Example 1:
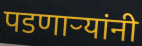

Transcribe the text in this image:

पडणाऱ्यांनी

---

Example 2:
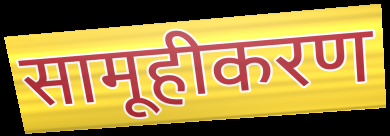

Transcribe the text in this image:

सामूहीकरण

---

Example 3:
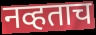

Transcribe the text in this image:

नव्हताच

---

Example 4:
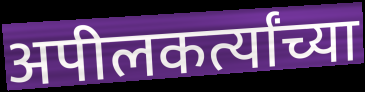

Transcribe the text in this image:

अपीलकर्त्यांच्या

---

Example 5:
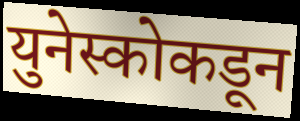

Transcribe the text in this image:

युनेस्कोकडून